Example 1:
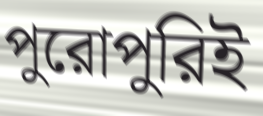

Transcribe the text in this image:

পুরোপুরিই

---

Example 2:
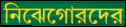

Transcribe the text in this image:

নিঝেগোরদের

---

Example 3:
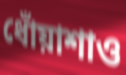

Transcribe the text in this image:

ধোঁয়াশাও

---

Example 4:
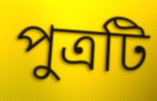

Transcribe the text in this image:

পুত্রটি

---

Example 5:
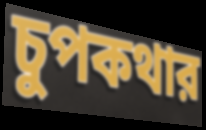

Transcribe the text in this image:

চুপকথার